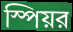
স্পিয়র